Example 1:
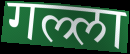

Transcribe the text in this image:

गल्ला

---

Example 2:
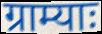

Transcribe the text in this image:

ग्राम्याः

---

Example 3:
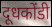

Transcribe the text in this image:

दूधकोंडी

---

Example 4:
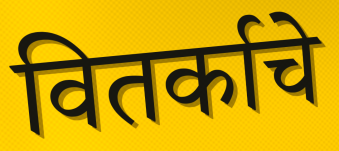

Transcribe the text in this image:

वितर्काचे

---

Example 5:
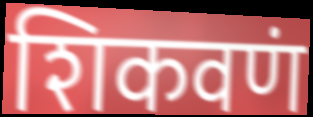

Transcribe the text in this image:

शिकवणं